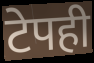
टेपही